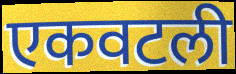
एकवटली